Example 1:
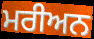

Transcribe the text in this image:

ਮਰੀਅਨ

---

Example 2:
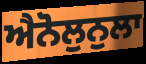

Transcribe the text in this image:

ਐਨੋਲੁਨੁਲਾ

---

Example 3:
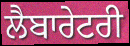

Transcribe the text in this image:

ਲੈਬਾਰੇਟਰੀ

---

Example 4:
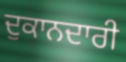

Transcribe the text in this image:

ਦੁਕਾਨਦਾਰੀ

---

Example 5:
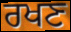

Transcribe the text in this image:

ਰਖਣ